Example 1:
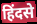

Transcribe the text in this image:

हिंदसे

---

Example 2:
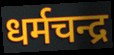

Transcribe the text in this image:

धर्मचन्द्र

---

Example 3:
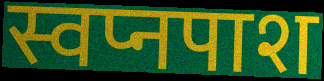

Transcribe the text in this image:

स्वप्नपाश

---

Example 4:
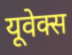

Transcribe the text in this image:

यूवेक्स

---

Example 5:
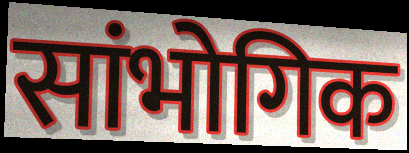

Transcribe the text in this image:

सांभोगिक